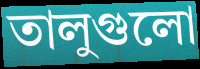
তালুগুলো